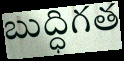
బుద్ధిగత